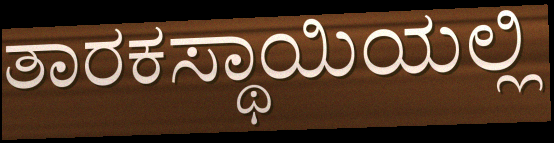
ತಾರಕಸ್ಥಾಯಿಯಲ್ಲಿ